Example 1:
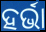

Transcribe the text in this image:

ହର୍ଭା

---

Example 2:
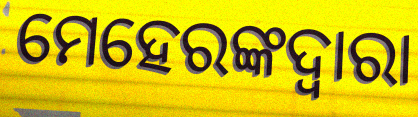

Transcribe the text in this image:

ମେହେରଙ୍କଦ୍ଵାରା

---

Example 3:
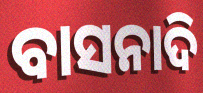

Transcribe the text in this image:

ବାସନାଦି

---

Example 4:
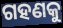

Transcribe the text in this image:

ଗହଣକୁ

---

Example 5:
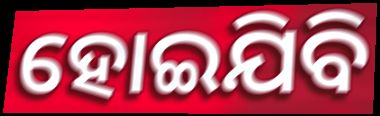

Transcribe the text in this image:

ହୋଇଯିବି